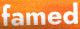
famed